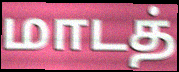
மாடத்